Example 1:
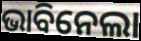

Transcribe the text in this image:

ଭାବିନେଲା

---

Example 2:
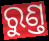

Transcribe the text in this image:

ରୁଣ୍ତ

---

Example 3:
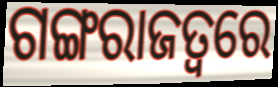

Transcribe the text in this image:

ଗଙ୍ଗରାଜତ୍ୱରେ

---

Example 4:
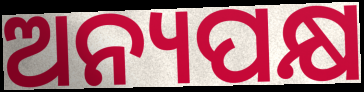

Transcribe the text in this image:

ଅନ୍ୟପକ୍ଷ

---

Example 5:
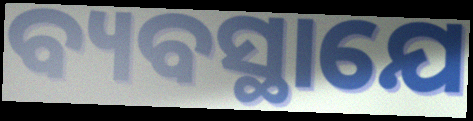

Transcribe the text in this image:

ବ୍ୟବସ୍ଥାଯେ